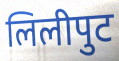
लिलीपुट